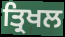
ਤ੍ਰਿਖਲ